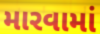
મારવામાં